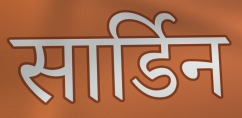
सार्डिन